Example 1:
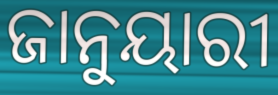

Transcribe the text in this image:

ଜାନୁୟାରୀ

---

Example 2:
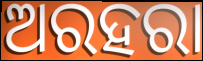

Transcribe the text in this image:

ଅରହରା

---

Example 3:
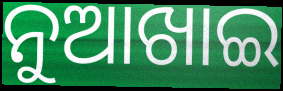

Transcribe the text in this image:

ନୁଆଖାଇ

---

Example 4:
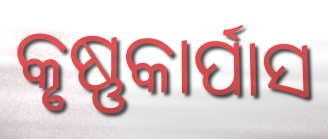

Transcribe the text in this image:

କୃଷ୍ଣକାର୍ପାସ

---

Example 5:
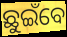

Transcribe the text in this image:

ଛୁଇଁବେ